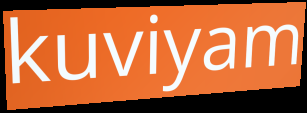
kuviyam